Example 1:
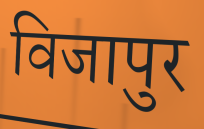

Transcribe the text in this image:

विजापुर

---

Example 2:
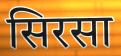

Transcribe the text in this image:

सिरसा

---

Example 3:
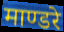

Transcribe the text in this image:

माण्डरे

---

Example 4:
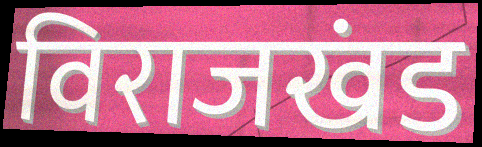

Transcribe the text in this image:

विराजखंड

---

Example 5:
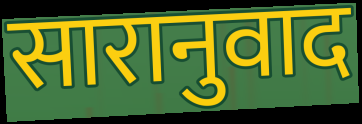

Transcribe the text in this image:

सारानुवाद